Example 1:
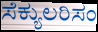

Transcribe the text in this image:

ಸೆಕ್ಯುಲರಿಸಂ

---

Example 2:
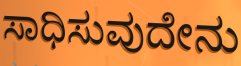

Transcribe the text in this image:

ಸಾಧಿಸುವುದೇನು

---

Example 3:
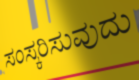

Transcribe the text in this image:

ಸಂಸ್ಕರಿಸುವುದು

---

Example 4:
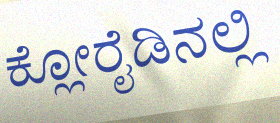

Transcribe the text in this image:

ಕ್ಲೋರೈಡಿನಲ್ಲಿ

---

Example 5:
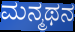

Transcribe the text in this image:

ಮನ್ಮಥನ